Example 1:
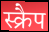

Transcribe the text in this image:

स्क्रैप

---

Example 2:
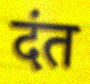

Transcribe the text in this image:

दंत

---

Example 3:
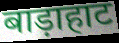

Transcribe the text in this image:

बाड़ाहाट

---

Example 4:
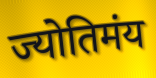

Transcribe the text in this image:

ज्योतिमंय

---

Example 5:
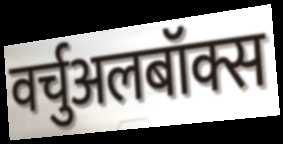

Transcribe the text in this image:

वर्चुअलबॉक्स